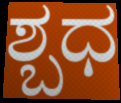
ಶ್ಬಧ